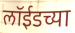
लॉईडच्या